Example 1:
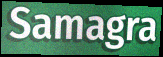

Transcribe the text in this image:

Samagra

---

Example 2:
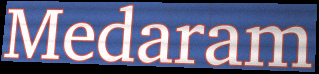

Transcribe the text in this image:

Medaram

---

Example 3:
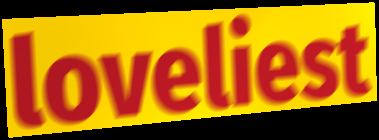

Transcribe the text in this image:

loveliest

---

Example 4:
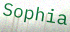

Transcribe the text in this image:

Sophia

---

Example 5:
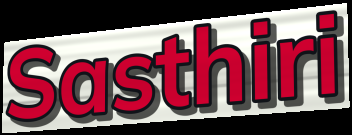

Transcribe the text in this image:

Sasthiri